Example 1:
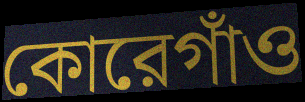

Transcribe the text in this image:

কোরেগাঁও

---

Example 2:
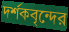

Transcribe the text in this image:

দর্শকবৃন্দের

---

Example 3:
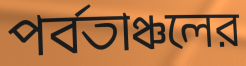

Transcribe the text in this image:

পর্বতাঞ্চলের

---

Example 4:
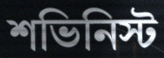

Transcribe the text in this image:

শভিনিস্ট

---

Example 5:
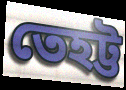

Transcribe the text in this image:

তেহট্ট